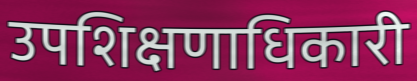
उपशिक्षणाधिकारी